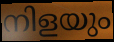
നിളയും